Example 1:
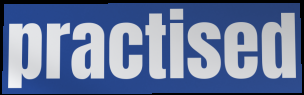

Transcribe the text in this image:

practised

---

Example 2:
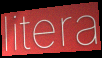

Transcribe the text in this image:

litera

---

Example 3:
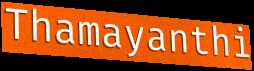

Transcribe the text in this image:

Thamayanthi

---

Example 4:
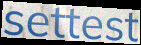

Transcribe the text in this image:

settest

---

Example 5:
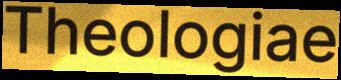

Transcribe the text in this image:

Theologiae